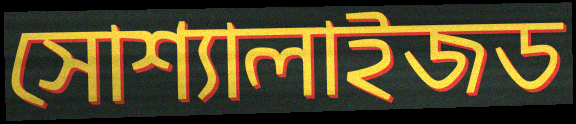
সোশ্যালাইজড